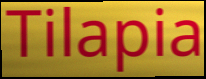
Tilapia